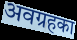
अवग्रहका